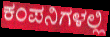
ಕಂಪನಿಗಳಲ್ಲಿ